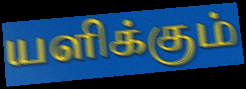
யளிக்கும்